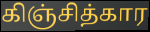
கிஞ்சித்கார